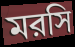
মরসি